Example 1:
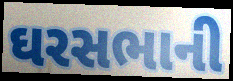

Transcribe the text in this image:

ઘરસભાની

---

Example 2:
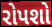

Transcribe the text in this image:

રોપશો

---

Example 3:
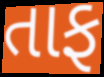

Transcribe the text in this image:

તાફ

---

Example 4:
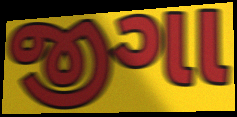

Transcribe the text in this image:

જીગા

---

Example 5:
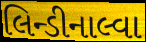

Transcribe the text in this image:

લિન્ડીનાલ્વા